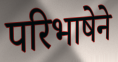
परिभाषेने